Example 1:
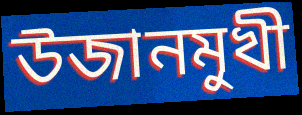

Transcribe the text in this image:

উজানমুখী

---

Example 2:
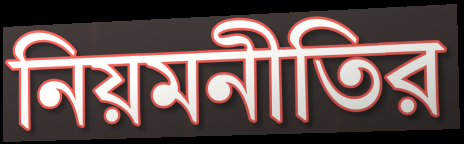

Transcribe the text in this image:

নিয়মনীতির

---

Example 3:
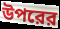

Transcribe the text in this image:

উপরের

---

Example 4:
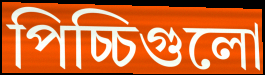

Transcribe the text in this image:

পিচ্চিগুলো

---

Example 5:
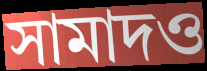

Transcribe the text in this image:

সামাদও